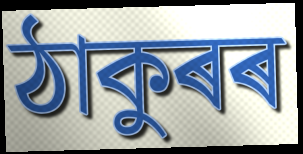
ঠাকুৰৰ